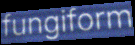
fungiform